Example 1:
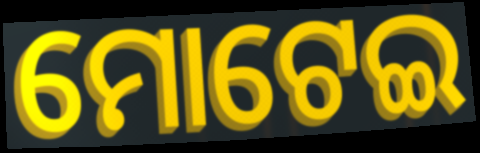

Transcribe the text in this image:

ମୋଟେଇ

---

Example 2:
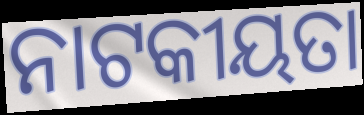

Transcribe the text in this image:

ନାଟକୀୟତା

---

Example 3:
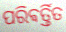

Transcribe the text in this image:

ପରିଵର୍ତ୍ତିତ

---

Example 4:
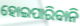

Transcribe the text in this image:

ହୋଇପାରିବାନି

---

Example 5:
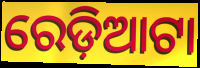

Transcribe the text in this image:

ରେଡ଼ିଆଟା